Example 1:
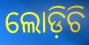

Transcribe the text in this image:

ଲୋଡ଼ିଚି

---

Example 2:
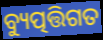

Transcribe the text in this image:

ବ୍ୟୁତ୍ପତ୍ତିଗତ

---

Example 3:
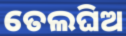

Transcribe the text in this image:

ତେଲଘିଅ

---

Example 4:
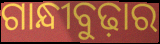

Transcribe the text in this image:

ଗାନ୍ଧୀବୁଢ଼ାର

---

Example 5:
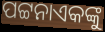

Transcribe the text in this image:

ପଟ୍ଟନାଏକଙ୍କୁ